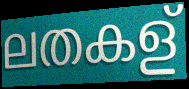
ലതകള്